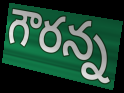
గౌరన్న